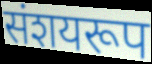
संशयरूप